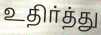
உதிர்த்து